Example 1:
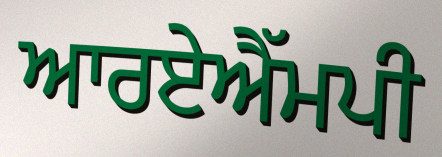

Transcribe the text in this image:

ਆਰਏਐੱਮਪੀ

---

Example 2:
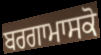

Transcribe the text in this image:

ਬਰਗਾਮਾਸਕੋ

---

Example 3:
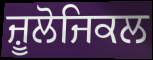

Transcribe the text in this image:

ਜ਼ੂਲੋਜਿਕਲ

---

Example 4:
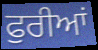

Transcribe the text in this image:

ਫੁਰੀਆਂ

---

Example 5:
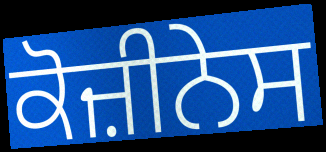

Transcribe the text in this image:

ਕੋਜ਼ੀਨੇਸ